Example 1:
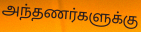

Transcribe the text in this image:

அந்தணர்களுக்கு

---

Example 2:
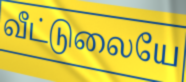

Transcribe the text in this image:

வீட்டுலையே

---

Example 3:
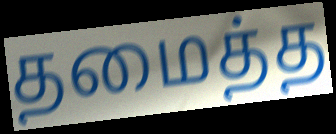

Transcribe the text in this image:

தமைத்த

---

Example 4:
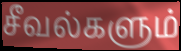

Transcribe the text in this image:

சீவல்களும்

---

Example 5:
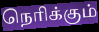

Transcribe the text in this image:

நெரிக்கும்